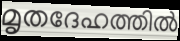
മൃതദേഹത്തിൽ